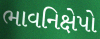
ભાવનિક્ષેપો